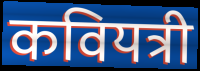
कवियत्री